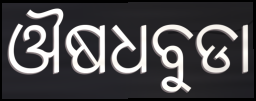
ଔଷଧବୁଡା